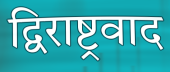
द्विराष्ट्रवाद